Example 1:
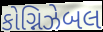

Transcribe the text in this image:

કોગ્નિઝેબલ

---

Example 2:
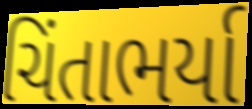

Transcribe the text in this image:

ચિંતાભર્યા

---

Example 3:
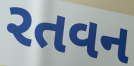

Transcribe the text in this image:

રતવન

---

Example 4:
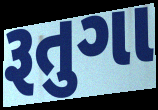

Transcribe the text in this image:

રૂતુગા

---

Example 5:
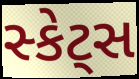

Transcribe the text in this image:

સ્કેટ્સ